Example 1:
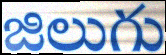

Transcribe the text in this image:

జిలుగు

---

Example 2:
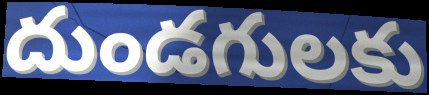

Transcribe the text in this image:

దుండగులకు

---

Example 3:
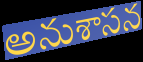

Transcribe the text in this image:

అనుశాసన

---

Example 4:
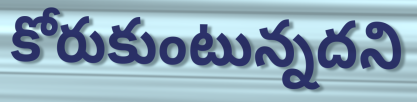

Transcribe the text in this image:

కోరుకుంటున్నదని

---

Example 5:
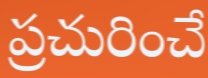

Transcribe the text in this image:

ప్రచురించే